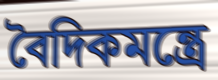
বৈদিকমন্ত্রে